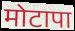
मोटापा